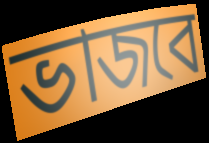
ভাজবে